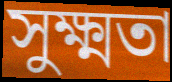
সুক্ষ্মতা